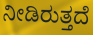
ನೀಡಿರುತ್ತದೆ